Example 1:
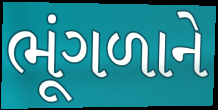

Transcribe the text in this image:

ભૂંગળાને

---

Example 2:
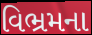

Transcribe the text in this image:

વિભ્રમના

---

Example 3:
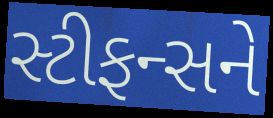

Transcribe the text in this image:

સ્ટીફન્સને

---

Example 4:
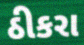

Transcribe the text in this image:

ઠીકરા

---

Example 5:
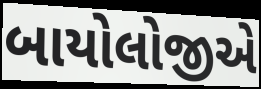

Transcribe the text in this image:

બાયોલોજીએ